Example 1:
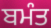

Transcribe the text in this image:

ਬਮੰਤ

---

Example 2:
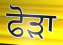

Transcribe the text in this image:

ਫੋੜਾ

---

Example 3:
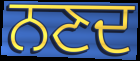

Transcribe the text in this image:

ਨਣਦ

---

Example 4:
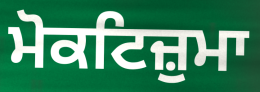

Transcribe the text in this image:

ਮੋਕਟਿਜ਼ੁਮਾ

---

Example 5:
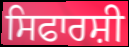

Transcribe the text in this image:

ਸਿਫਾਰਸ਼ੀ